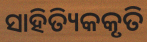
ସାହିତ୍ୟିକକୃତି